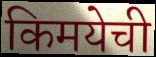
किमयेची